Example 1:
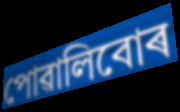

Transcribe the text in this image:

পোৱালিবোৰ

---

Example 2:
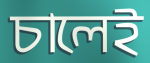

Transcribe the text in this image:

চালেই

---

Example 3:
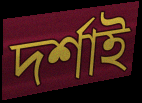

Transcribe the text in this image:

দৰ্শাই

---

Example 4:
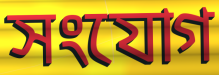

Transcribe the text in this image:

সংযোগ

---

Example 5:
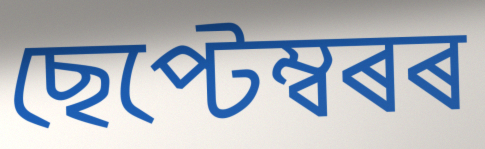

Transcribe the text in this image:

ছেপ্টেম্বৰৰ